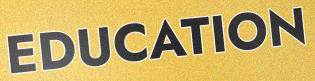
EDUCATION